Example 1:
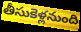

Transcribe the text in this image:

తీసుకెళ్లనుంది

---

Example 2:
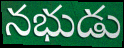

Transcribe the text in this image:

నభుడు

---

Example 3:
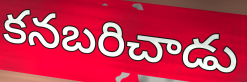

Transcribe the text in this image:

కనబరిచాడు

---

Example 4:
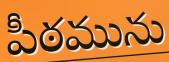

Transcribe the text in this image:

పీఠమును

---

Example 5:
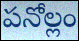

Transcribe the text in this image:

పనోల్లం